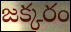
జక్కరం